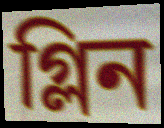
গ্লিন